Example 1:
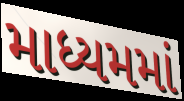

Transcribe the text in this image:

માધ્યમમાં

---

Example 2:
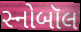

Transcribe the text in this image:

સ્નોબૉલ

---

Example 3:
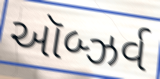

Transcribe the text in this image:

ઑબ્ઝર્વ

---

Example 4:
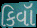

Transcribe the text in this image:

કિવૉ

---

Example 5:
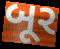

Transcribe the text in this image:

બૂર